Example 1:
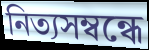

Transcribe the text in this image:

নিত্যসম্বন্ধে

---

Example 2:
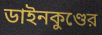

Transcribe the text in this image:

ডাইনকুণ্ডের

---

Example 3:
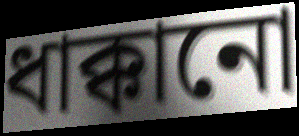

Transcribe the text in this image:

ধাক্কানো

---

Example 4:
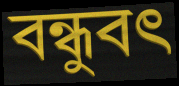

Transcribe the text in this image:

বন্ধুবৎ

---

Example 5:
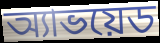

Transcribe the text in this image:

অ্যাভয়েড